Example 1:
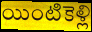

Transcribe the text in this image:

యింటికెళ్లి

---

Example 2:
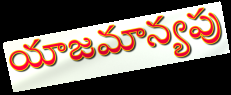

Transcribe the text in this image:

యాజమాన్యపు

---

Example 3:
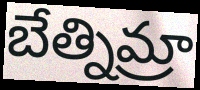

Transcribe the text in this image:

బేత్నిమ్రా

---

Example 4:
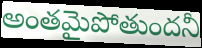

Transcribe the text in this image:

అంతమైపోతుందనీ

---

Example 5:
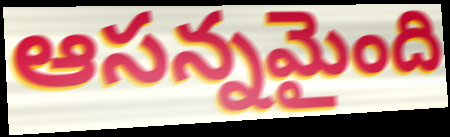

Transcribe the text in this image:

ఆసన్నమైంది